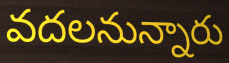
వదలనున్నారు